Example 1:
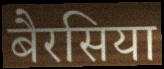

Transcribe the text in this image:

बैरसिया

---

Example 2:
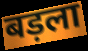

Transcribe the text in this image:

बड़ला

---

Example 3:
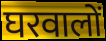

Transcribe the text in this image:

घरवालों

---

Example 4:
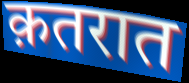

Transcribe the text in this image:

क़तरात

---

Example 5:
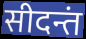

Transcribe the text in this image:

सीदन्तं